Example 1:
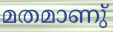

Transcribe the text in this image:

മതമാണു്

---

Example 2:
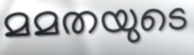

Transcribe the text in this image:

മമതയുടെ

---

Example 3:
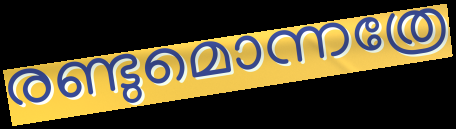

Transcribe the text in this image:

രണ്ടുമൊന്നത്രേ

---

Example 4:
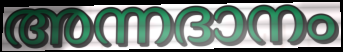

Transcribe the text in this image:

അന്നദാനം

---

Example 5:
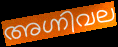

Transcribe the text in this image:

അഗ്നിവല